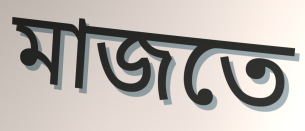
মাজতে